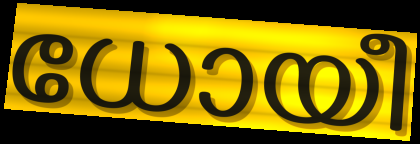
ധോയീ